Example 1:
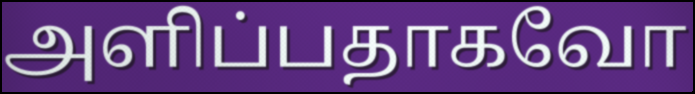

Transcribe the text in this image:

அளிப்பதாகவோ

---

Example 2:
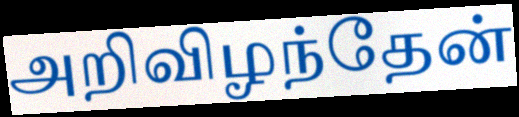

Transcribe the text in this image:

அறிவிழந்தேன்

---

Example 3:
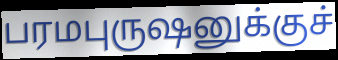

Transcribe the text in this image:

பரமபுருஷனுக்குச்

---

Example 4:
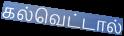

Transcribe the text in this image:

கல்வெட்டால்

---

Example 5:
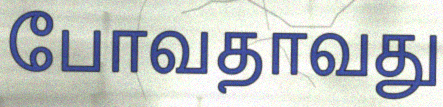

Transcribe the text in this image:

போவதாவது